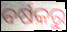
ବର୍ଷକରୁ